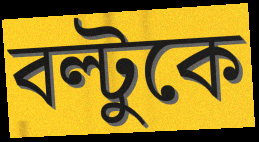
বল্টুকে